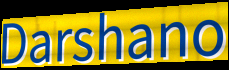
Darshano